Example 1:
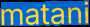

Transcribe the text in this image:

matani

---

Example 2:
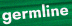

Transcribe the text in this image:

germline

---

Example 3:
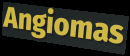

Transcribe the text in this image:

Angiomas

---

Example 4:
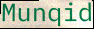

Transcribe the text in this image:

Munqid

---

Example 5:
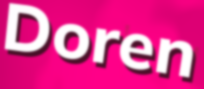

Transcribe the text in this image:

Doren